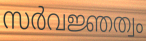
സർവജ്ഞത്വം